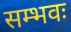
सम्भवः